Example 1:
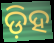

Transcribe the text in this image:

ଡ଼ିହ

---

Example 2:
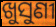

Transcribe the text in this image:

ଖୁସୁଣୀ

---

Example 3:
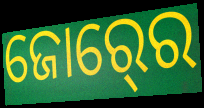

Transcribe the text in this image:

ଜୋର୍‍ରେ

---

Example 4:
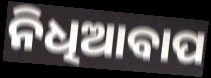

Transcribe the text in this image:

ନିଧିଆବାପ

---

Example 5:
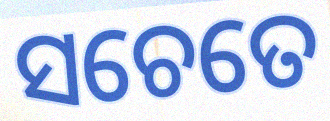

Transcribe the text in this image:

ସଚେତେ